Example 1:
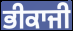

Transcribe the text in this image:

ਭੀਕਾਜੀ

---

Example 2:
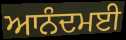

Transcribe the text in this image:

ਆਨੰਦਮਈ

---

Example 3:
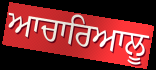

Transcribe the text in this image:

ਆਚਾਰਿਆਲੂ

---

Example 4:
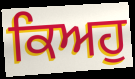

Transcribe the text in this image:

ਕਿਅਹੁ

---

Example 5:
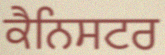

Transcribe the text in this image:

ਕੈਨਿਸਟਰ